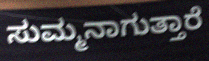
ಸುಮ್ಮನಾಗುತ್ತಾರೆ